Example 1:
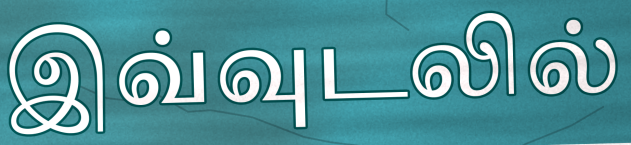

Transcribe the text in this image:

இவ்வுடலில்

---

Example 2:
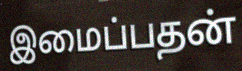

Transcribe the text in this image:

இமைப்பதன்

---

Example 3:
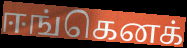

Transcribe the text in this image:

ஈங்கெனக்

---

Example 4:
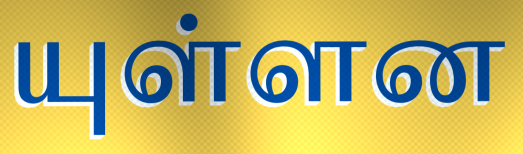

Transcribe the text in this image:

யுள்ளன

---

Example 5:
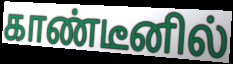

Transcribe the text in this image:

காண்டீனில்